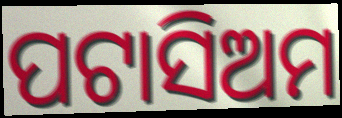
ପଟାସିଅମ